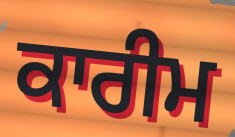
ਕਾਰੀਮ